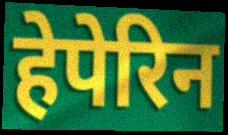
हेपेरिन